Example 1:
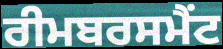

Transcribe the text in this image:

ਰੀਮਬਰਸਮੈਂਟ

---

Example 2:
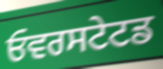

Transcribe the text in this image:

ਓਵਰਸਟੇਟਡ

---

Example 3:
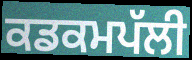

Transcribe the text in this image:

ਕਡਕਮਪੱਲੀ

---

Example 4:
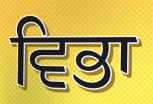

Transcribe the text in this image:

ਵਿਭਾ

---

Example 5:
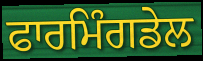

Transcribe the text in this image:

ਫਾਰਮਿੰਗਡੇਲ